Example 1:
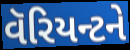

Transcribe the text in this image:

વૅરિયન્ટને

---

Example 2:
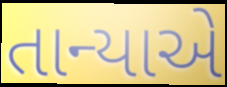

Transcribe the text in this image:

તાન્યાએ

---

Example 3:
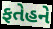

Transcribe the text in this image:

ફતેહને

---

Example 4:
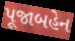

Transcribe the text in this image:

પૂજાબહેન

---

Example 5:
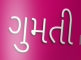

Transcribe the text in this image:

ગુમતી